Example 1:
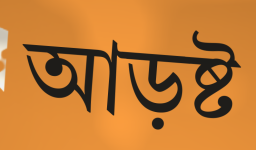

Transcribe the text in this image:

আড়ষ্ট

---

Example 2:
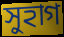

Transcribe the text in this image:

সুহাগ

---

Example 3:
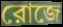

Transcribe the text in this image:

রোজে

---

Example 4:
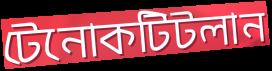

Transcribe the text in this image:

টেনোকটিটলান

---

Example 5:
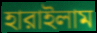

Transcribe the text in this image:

হারাইলাম